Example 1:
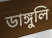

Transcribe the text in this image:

ডাঙ্গুলি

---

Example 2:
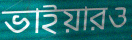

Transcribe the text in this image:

ভাইয়ারও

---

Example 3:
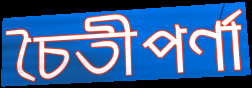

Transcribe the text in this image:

চৈতীপর্ণা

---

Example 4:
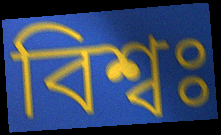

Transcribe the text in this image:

বিশ্বঃ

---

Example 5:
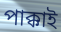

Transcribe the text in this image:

পাক্কাই